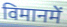
विमानमें